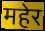
महेर